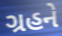
ગ્રહને